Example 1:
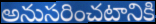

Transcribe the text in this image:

అనుసరించటానికి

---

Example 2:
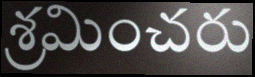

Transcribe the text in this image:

శ్రమించరు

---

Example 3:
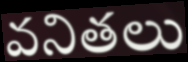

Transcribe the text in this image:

వనితలు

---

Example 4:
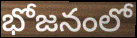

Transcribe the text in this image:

భోజనంలో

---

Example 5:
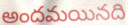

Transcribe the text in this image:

అందమయినది